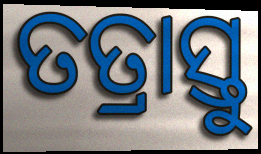
ତତ୍ରାସ୍ତୁ